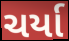
ચર્યા